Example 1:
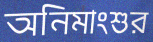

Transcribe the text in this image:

অনিমাংশুর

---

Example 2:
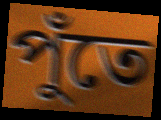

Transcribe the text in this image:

পুঁতে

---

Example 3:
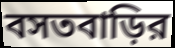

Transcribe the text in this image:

বসতবাড়ির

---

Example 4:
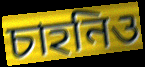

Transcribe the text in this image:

চাহনিও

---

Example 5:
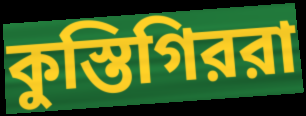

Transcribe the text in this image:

কুস্তিগিররা